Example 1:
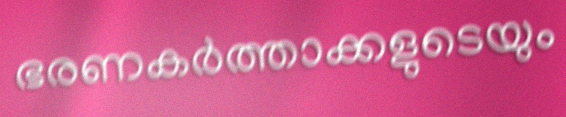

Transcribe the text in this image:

ഭരണകർത്താക്കളുടെയും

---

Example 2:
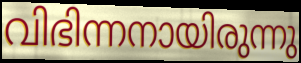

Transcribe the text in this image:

വിഭിന്നനായിരുന്നു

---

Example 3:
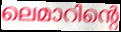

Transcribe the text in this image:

ലെമാറിന്റെ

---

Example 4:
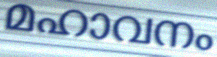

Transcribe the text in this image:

മഹാവനം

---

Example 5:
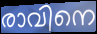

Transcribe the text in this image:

രാവിനെ